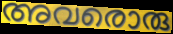
അവരൊരു